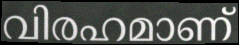
വിരഹമാണ്